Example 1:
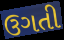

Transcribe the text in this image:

ઉગતી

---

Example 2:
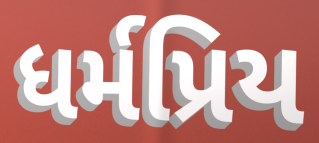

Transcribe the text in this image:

ધર્મપ્રિય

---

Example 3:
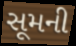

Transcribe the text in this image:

સૂમની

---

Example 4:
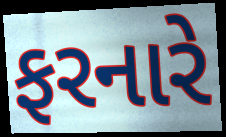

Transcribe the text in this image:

ફરનારે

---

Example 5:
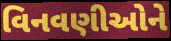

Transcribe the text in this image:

વિનવણીઓને